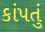
કાંપતું